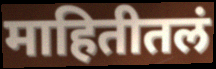
माहितीतलं